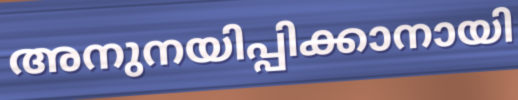
അനുനയിപ്പിക്കാനായി